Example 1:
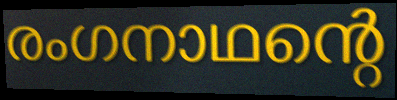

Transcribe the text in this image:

രംഗനാഥന്റെ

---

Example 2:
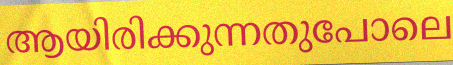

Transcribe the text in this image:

ആയിരിക്കുന്നതുപോലെ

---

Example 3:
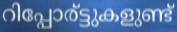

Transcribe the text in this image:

റിപ്പോര്ട്ടുകളുണ്ട്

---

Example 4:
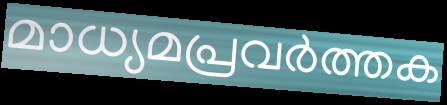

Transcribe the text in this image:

മാധ്യമപ്രവർത്തക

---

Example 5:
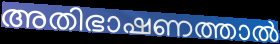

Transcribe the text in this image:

അതിഭാഷണത്താൽ